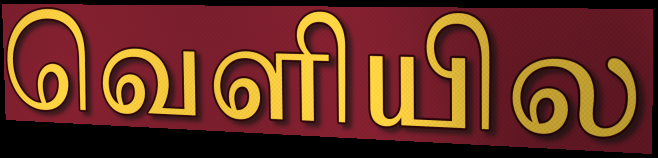
வெளியில